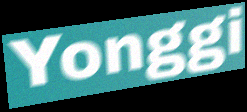
Yonggi